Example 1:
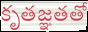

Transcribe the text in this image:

కృతజ్ఞతతో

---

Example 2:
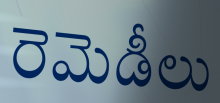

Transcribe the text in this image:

రెమెడీలు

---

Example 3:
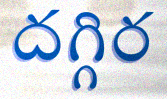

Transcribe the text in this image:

దగ్గిర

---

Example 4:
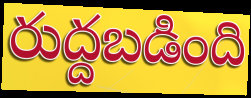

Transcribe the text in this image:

రుద్దబడింది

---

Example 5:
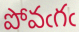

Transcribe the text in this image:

పోవఁగఁ